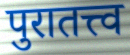
पुरातत्त्व